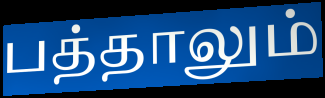
பத்தாலும்